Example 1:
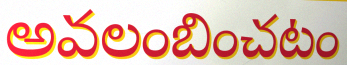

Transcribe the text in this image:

అవలంబించటం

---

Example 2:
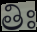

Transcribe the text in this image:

తిః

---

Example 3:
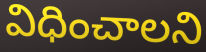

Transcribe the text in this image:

విధించాలని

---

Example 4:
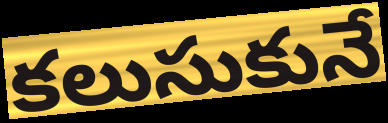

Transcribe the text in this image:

కలుసుకునే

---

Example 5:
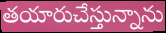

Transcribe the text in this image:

తయారుచేస్తున్నాను